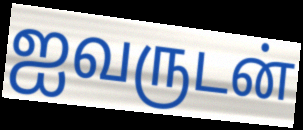
ஐவருடன்